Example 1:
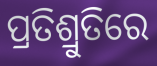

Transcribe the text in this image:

ପ୍ରତିଶ୍ରୁତିରେ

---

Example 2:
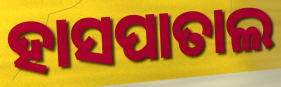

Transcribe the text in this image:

ହାସପାତାଲ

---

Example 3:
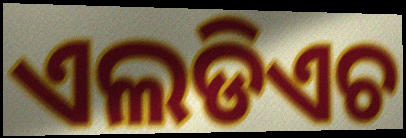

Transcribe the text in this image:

ଏଲଡିଏଚ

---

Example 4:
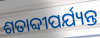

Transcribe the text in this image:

ଶତାବ୍ଦୀପର୍ଯ୍ୟନ୍ତ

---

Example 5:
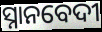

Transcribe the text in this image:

ସ୍ନାନବେଦୀ